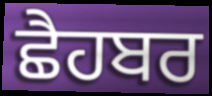
ਛੈਹਬਰ